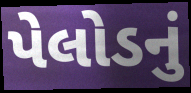
પેલોડનું